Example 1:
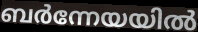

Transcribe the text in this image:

ബർന്നേയയിൽ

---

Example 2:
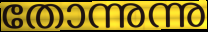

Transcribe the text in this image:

തോന്നുന്നു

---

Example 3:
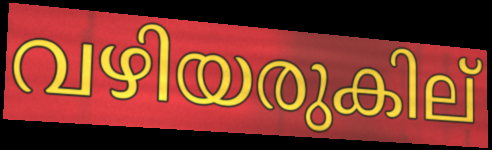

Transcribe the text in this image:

വഴിയരുകില്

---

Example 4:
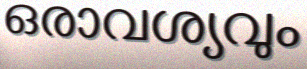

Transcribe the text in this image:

ഒരാവശ്യവും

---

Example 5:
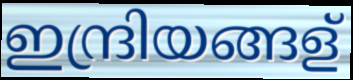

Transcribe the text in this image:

ഇന്ദ്രിയങ്ങള്